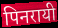
पिनरायी